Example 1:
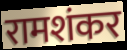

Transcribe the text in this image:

रामशंकर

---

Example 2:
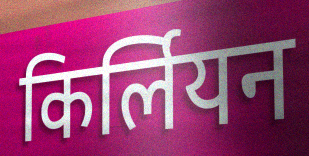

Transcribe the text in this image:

किर्लियन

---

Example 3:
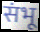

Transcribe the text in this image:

संभू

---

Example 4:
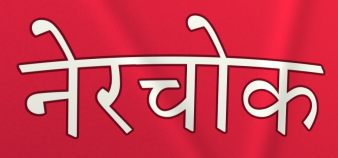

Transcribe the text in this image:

नेरचोक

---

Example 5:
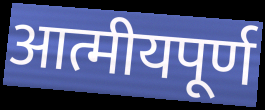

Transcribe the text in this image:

आत्मीयपूर्ण